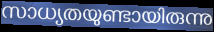
സാധ്യതയുണ്ടായിരുന്നു